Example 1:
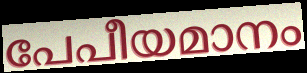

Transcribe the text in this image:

പേപീയമാനം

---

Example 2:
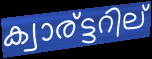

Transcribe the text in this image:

ക്വാര്ട്ടറില്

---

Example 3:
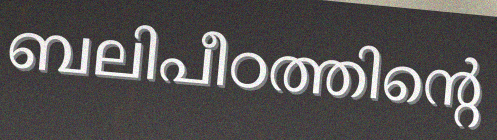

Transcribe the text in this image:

ബലിപീഠത്തിന്റെ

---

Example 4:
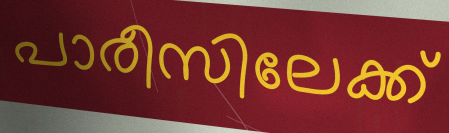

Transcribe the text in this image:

പാരീസിലേക്ക്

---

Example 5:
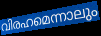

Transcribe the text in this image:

വിരഹമെന്നാലും